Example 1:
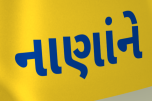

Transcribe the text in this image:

નાણાંને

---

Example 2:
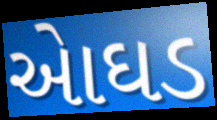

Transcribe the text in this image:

એાઘડ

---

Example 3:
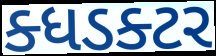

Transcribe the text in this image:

ક્ધડક્ટર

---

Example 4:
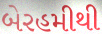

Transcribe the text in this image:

બેરહમીથી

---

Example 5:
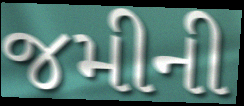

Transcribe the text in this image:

જમીની